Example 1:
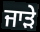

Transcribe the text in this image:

ਜਾੜੇ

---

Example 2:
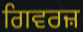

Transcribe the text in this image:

ਗਿਵਰਜ਼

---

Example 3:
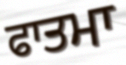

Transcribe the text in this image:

ਫਾਤਮਾ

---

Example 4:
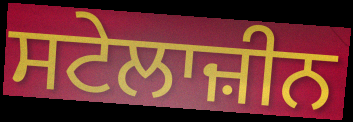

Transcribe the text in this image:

ਸਟੇਲਾਜ਼ੀਨ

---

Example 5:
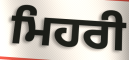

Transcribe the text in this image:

ਮਿਹਰੀ